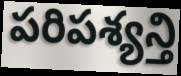
పరిపశ్యన్తి